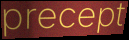
precept